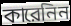
কারেনিন